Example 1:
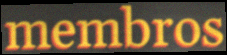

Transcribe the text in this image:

membros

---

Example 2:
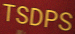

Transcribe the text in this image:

TSDPS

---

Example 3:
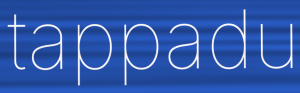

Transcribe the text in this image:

tappadu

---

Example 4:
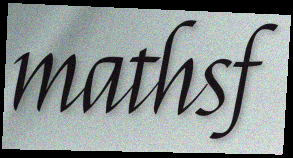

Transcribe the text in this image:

mathsf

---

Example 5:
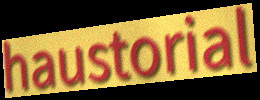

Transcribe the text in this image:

haustorial